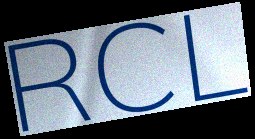
RCL